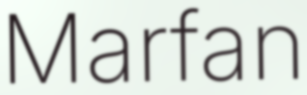
Marfan